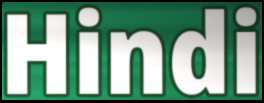
Hindi